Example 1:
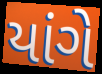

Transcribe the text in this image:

યાંગે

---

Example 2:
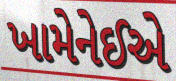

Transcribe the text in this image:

ખામેનેઈએ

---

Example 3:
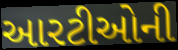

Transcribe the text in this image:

આરટીઓની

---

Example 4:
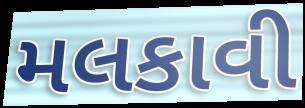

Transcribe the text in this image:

મલકાવી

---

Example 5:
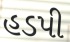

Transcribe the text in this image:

હડપી